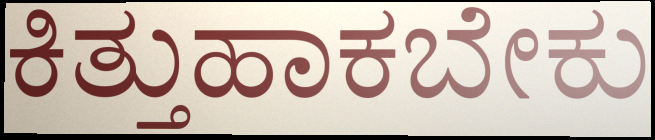
ಕಿತ್ತುಹಾಕಬೇಕು